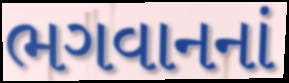
ભગવાનનાં